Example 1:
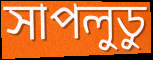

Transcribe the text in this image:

সাপলুডু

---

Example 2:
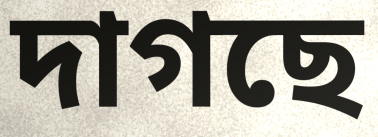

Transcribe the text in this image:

দাগছে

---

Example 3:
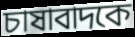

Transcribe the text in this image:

চাষাবাদকে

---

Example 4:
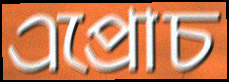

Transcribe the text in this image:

এপ্রোচ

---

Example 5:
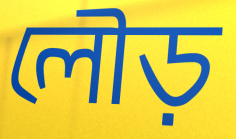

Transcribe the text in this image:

লৌড়